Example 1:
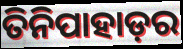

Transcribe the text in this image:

ତିନିପାହାଡ଼ର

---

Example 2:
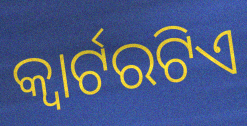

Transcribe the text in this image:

କ୍ୱାର୍ଟରଟିଏ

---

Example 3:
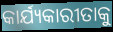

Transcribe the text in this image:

କାର୍ଯ୍ୟକାରୀତାକୁ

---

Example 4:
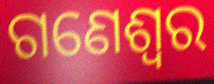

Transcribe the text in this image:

ଗଣେଶ୍ୱର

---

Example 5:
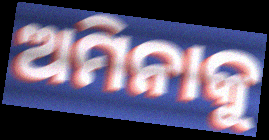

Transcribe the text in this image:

ଅମିନାକୁ